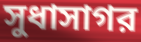
সুধাসাগর